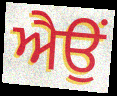
ਐਉਂ